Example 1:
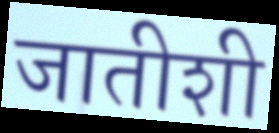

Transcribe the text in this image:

जातीशी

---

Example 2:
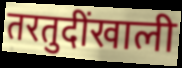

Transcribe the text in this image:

तरतुदींखाली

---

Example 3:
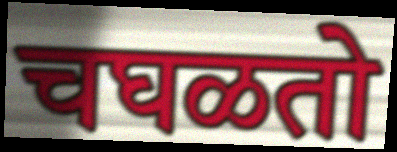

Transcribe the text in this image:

चघळतो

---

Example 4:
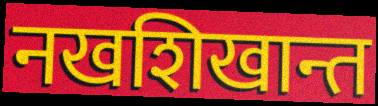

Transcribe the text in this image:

नखशिखान्त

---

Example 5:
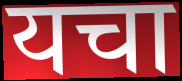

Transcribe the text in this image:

यचा